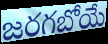
జరగబోయే